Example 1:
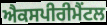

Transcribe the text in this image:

ਐਕਸਪੀਰੀਮੈਂਟਲ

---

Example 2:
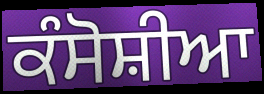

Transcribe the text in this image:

ਕੰਸੋਸ਼ੀਆ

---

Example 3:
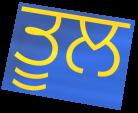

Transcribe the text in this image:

ਤੂਲ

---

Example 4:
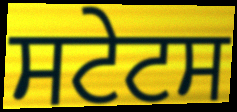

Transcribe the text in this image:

ਸਟੇਟਸ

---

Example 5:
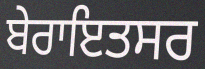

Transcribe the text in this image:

ਬੇਰਾਇਤਸਰ